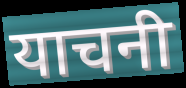
याचनी